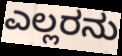
ಎಲ್ಲರನು